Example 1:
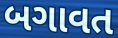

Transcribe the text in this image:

બગાવત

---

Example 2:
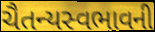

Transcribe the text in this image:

ચૈતન્યસ્વભાવની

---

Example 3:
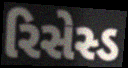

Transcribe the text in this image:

રિસેસ્ડ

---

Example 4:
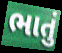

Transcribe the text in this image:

ભાતું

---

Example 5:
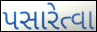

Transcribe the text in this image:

પસારેત્વા